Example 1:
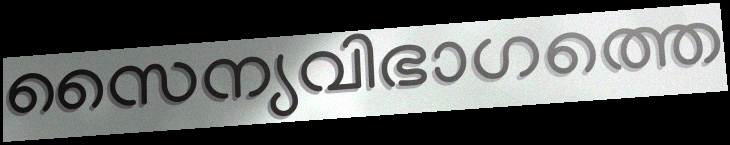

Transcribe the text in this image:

സൈന്യവിഭാഗത്തെ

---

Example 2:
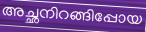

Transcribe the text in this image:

അച്ഛനിറങ്ങിപ്പോയ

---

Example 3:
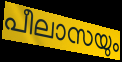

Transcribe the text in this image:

പീലാസയും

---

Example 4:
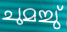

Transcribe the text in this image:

ചുമച്ചു്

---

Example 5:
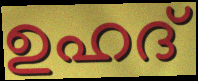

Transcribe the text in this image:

ഉഹദ്